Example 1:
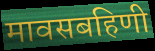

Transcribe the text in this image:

मावसबहिणी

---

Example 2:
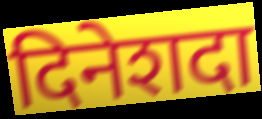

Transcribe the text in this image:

दिनेशदा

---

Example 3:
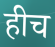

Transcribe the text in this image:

हीच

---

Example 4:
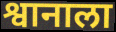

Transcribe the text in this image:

श्वानाला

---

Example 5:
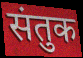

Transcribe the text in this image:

संतुक